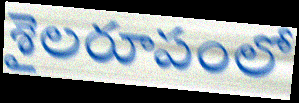
శైలరూపంలో